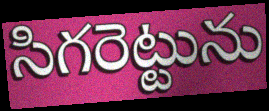
సిగరెట్టును